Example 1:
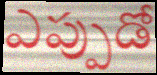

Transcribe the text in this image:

ఎప్పుడో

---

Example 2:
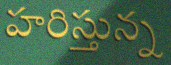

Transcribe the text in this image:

హరిస్తున్న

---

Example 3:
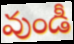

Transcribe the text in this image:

వుండీ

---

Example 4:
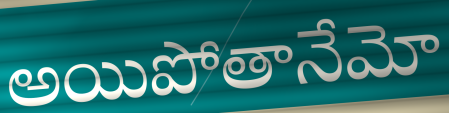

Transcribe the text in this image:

అయిపోతానేమో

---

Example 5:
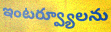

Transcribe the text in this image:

ఇంటర్వ్యూలను